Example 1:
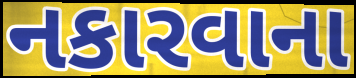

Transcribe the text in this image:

નકારવાના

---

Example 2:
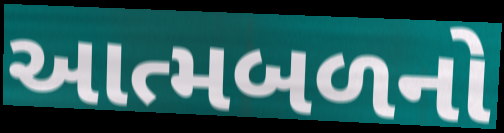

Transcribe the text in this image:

આત્મબળનો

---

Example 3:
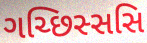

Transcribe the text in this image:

ગચ્છિસ્સસિ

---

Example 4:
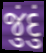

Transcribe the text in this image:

જુંદું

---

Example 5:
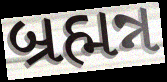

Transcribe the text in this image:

બ્રહ્મન્ન